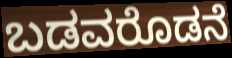
ಬಡವರೊಡನೆ